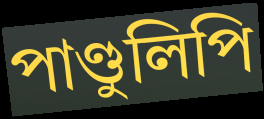
পাণ্ডুলিপি